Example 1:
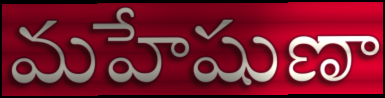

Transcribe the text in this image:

మహేషుణా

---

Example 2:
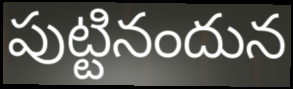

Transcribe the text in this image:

పుట్టినందున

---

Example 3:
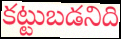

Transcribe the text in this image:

కట్టుబడనిది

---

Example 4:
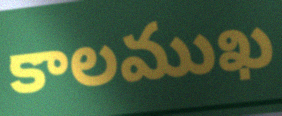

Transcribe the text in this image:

కాలముఖ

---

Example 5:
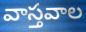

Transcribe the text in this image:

వాస్తవాల